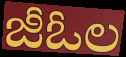
జీఓల